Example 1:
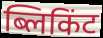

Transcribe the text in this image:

ब्लिकिंट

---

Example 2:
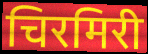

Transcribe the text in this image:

चिरमिरी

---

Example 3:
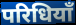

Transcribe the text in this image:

परिधियाँ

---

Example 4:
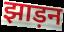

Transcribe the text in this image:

झाड़न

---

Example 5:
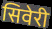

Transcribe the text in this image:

सिवेरी